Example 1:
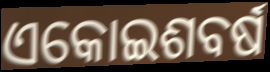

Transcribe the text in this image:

ଏକୋଇଶବର୍ଷ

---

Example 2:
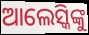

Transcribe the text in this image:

ଆଲେସ୍କିଙ୍କୁ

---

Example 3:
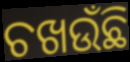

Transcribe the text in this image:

ଚଖଉଁଛି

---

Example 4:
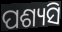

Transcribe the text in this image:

ପଶ୍ୟସି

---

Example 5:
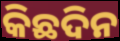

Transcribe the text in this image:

କିଛଦିନ